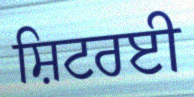
ਸ਼ਿਟਰਈ